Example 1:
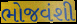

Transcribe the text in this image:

ભોજવંશી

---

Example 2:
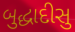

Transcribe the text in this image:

બુદ્ધાદીસુ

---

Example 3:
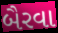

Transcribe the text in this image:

બૈરવા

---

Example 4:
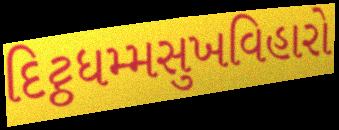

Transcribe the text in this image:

દિટ્ઠધમ્મસુખવિહારો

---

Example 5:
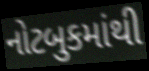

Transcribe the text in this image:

નોટબુકમાંથી